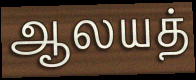
ஆலயத்